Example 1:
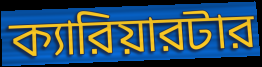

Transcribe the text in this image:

ক্যারিয়ারটার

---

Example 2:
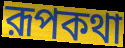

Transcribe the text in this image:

রূপকথা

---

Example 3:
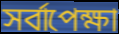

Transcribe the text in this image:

সর্বাপেক্ষা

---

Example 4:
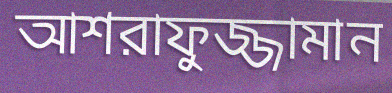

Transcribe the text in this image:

আশরাফুজ্জামান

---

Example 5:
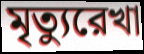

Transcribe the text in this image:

মৃত্যুরেখা